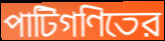
পাটিগণিতের